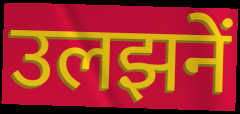
उलझनें